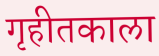
गृहीतकाला